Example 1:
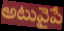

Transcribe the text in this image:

అటువైపే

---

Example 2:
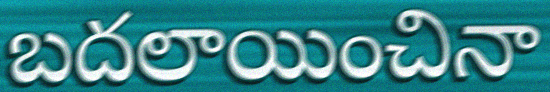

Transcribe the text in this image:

బదలాయించినా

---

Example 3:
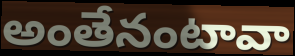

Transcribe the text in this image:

అంతేనంటావా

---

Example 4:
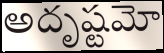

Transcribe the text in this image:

అదృష్టమో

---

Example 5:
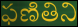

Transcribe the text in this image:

ఫణితిని